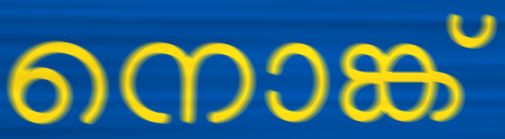
നൊങ്ക്